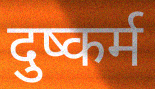
दुष्कर्म